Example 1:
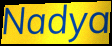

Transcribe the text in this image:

Nadya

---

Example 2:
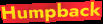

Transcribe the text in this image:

Humpback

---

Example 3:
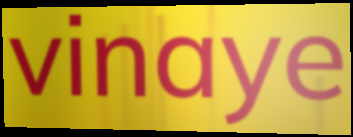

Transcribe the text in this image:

vinaye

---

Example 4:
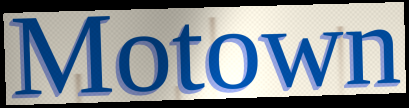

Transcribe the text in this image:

Motown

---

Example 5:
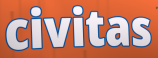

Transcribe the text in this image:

civitas